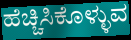
ಹೆಚ್ಚಿಸಿಕೊಳ್ಳುವ